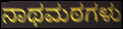
ನಾಥಮಠಗಳು